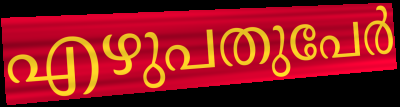
എഴുപതുപേർ